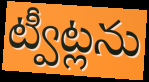
ట్వీట్లను